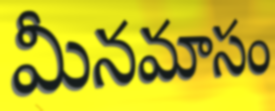
మీనమాసం